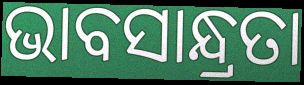
ଭାବସାନ୍ଧ୍ରତା